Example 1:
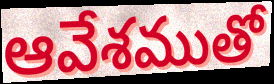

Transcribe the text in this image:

ఆవేశముతో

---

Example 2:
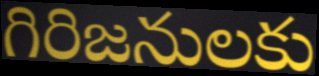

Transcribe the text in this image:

గిరిజనులకు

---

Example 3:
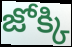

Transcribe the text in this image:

జోక్కి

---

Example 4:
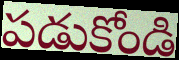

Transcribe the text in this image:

పడుకోండి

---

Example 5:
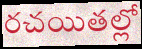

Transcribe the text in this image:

రచయితల్లో